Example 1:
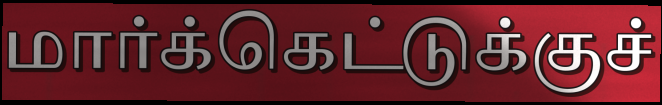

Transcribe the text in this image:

மார்க்கெட்டுக்குச்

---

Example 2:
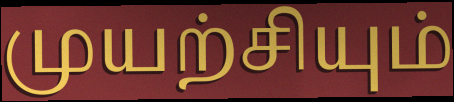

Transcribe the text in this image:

முயற்சியும்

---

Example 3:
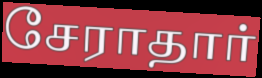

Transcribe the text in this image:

சேராதார்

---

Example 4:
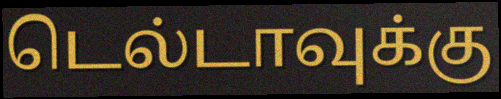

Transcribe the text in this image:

டெல்டாவுக்கு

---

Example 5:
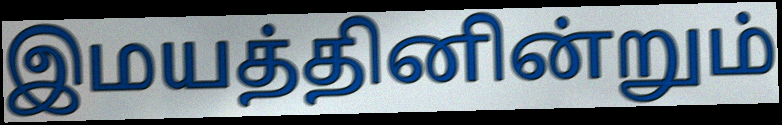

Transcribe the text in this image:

இமயத்தினின்றும்